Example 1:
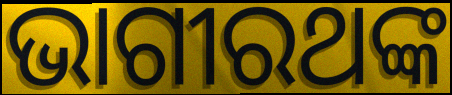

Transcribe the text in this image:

ଭାଗୀରଥଙ୍କ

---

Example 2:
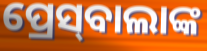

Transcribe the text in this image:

ପ୍ରେସ୍‌ବାଲାଙ୍କ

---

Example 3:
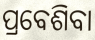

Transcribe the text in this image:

ପ୍ରବେଶିବା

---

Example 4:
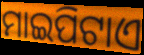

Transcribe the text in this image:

ମାଇପିଟାଏ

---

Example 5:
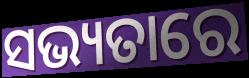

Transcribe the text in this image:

ସଭ୍ୟତାରେ